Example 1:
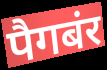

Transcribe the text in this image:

पैगबंर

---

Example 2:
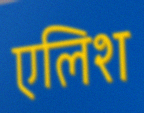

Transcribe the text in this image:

एलिश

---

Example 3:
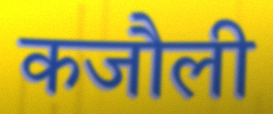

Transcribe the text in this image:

कजौली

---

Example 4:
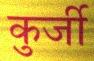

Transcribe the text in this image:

कुर्जी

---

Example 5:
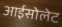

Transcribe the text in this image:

आईसोलेट